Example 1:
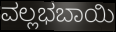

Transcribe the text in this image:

ವಲ್ಲಭಬಾಯಿ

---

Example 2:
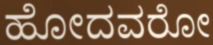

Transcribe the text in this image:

ಹೋದವರೋ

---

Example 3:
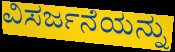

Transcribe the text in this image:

ವಿಸರ್ಜನೆಯನ್ನು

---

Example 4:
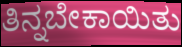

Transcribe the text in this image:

ತಿನ್ನಬೇಕಾಯಿತು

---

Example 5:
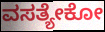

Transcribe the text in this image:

ವಸತ್ಯೇಕೋ